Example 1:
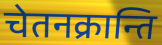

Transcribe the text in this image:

चेतनक्रान्ति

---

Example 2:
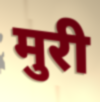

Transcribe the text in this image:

मुरी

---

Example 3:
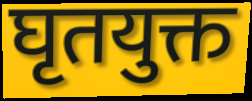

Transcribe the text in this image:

घृतयुक्त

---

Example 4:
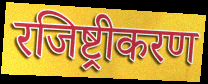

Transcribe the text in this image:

रजिष्ट्रीकरण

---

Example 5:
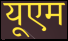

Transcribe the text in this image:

यूएम